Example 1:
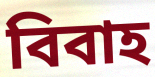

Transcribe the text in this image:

বিবাহ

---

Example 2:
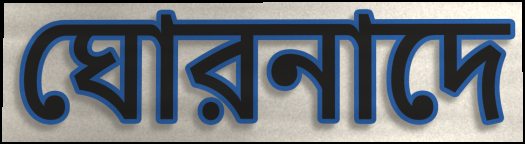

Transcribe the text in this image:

ঘোরনাদে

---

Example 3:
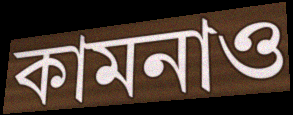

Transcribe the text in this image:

কামনাও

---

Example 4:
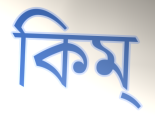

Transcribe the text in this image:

কিম্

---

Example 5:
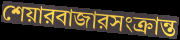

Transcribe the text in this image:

শেয়ারবাজারসংক্রান্ত